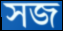
সজ